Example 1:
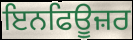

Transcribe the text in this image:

ਇਨਫਿਊਜ਼ਰ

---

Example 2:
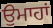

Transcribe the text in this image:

ਉਮਾਹਾਂ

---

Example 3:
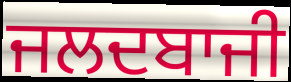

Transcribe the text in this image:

ਜਲਦਬਾਜੀ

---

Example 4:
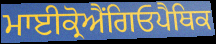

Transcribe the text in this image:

ਮਾਈਕ੍ਰੋਐਂਗਿਓਪੈਥਿਕ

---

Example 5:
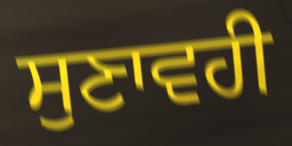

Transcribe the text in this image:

ਸੁਣਾਵਹੀ